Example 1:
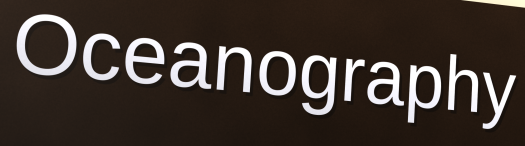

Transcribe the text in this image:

Oceanography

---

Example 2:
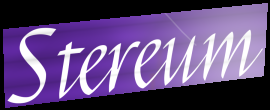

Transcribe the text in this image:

Stereum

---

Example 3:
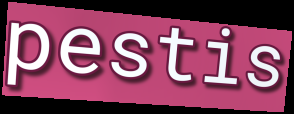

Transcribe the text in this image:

pestis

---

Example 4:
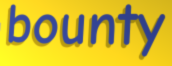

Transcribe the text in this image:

bounty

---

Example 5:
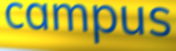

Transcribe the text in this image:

campus